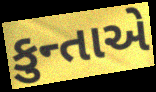
કુન્તાએ